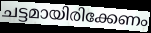
ചട്ടമായിരിക്കേണം